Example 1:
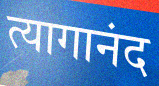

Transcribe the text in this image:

त्यागानंद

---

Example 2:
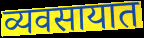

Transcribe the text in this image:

व्यवसायात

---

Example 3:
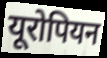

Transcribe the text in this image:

यूरोपियन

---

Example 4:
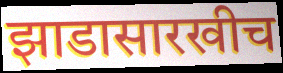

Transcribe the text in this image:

झाडासारखीच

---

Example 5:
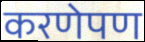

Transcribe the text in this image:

करणेपण